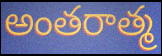
అంతరాత్మ